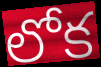
లోక